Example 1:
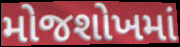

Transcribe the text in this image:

મોજશોખમાં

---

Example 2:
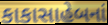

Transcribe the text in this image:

કાકાસાહેબનાં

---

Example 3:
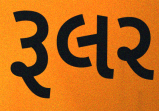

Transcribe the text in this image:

રૂલર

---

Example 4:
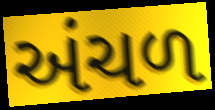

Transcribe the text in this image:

અંચળ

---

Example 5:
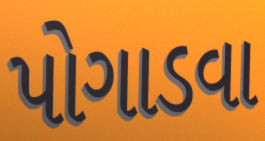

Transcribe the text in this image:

પોગાડવા